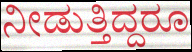
ನೀಡುತ್ತಿದ್ದರೂ